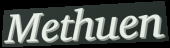
Methuen